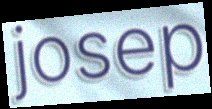
josep